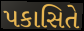
પકાસિતે